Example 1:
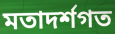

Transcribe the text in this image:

মতাদর্শগত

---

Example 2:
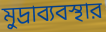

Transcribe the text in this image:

মুদ্রাব্যবস্থার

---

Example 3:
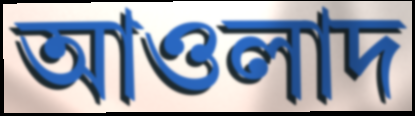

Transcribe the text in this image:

আওলাদ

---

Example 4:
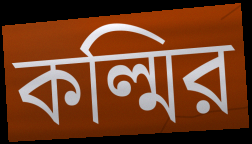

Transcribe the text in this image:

কল্মির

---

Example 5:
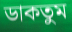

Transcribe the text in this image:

ডাকতুম